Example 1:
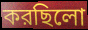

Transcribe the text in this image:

করছিলো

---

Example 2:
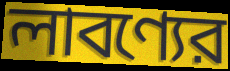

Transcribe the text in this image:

লাবণ্যের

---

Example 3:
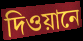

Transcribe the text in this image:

দিওয়ানে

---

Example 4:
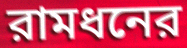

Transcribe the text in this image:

রামধনের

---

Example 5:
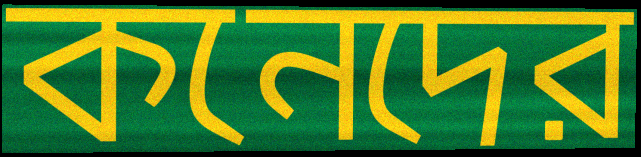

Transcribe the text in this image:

কনেদের